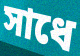
সাধে